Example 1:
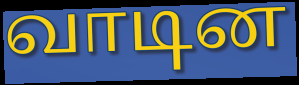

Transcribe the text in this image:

வாடின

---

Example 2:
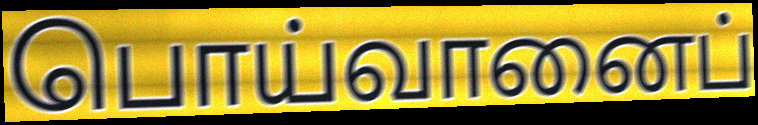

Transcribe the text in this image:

பொய்வானைப்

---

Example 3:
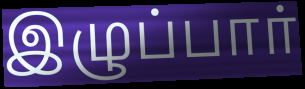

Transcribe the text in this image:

இழுப்பார்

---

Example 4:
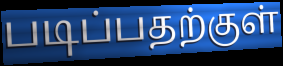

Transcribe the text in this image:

படிப்பதற்குள்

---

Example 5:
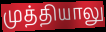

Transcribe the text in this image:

முத்தியாலு